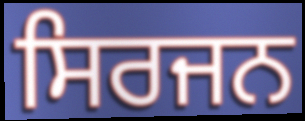
ਸਿਰਜਨ